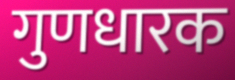
गुणधारक